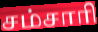
சம்சாரி